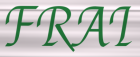
FRAI